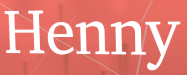
Henny